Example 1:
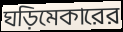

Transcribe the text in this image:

ঘড়িমেকারের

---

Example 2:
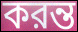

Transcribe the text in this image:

করন্ত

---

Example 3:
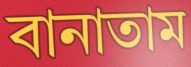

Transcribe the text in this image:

বানাতাম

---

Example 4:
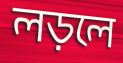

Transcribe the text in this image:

লড়লে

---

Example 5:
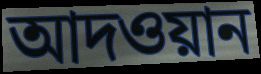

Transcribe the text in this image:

আদওয়ান